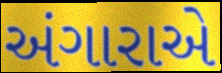
અંગારાએ